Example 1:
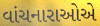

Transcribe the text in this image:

વાંચનારાઓએ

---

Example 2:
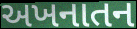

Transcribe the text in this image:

અખનાતન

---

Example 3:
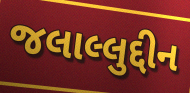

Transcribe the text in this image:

જલાલ્લુદ્દીન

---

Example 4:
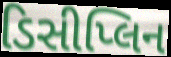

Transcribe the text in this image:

ડિસીપ્લિન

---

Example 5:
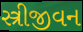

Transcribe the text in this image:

સ્ત્રીજીવન